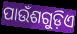
ପାଉଁଶଗୁଡ଼ିଏ